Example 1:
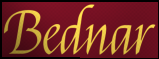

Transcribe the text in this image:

Bednar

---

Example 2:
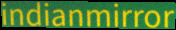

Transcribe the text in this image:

indianmirror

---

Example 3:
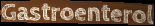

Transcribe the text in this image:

Gastroenterol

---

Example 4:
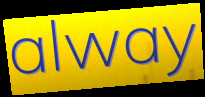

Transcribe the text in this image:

alway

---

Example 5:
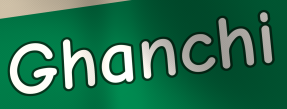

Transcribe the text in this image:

Ghanchi